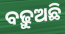
ବଢ଼ୁଅଛି